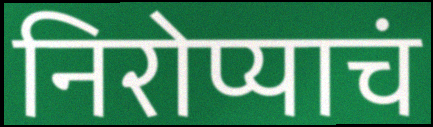
निरोप्याचं